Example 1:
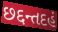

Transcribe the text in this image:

છદ્દન્તદહં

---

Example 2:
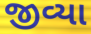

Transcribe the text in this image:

જીવ્યા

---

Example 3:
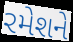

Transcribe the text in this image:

રમેશને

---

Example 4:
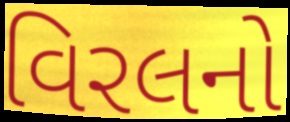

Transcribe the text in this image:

વિરલનો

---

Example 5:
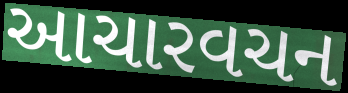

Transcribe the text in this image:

આચારવચન